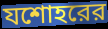
যশোহরের